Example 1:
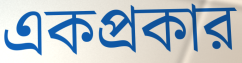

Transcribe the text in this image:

একপ্রকার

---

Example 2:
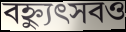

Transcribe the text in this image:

বহ্ন্যুৎসবও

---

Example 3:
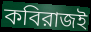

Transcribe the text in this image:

কবিরাজই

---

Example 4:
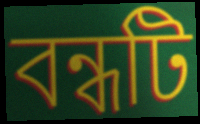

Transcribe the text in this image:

বন্ধটি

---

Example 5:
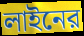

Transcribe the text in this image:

লাইনের